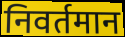
निवर्तमान